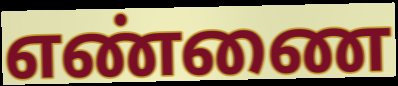
எண்ணை